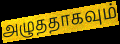
அழுததாகவும்